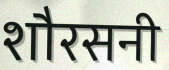
शौरसनी